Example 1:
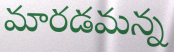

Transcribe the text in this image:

మారడమన్న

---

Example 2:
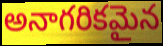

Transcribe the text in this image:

అనాగరికమైన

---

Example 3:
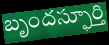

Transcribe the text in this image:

బృందస్ఫూర్తి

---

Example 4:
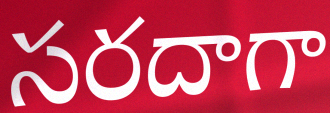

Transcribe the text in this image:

సరదాగా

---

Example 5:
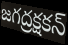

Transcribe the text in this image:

జగద్రక్షకన్